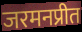
जरमनप्रीत